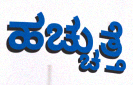
ಹಚ್ಚುತ್ತೆ